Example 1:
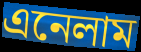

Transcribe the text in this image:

এনেলাম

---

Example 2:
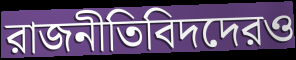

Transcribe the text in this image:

রাজনীতিবিদদেরও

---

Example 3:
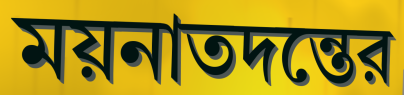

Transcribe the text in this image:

ময়নাতদন্তের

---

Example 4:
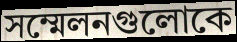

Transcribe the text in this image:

সম্মেলনগুলোকে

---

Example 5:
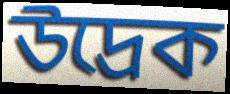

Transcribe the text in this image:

উদ্রেক